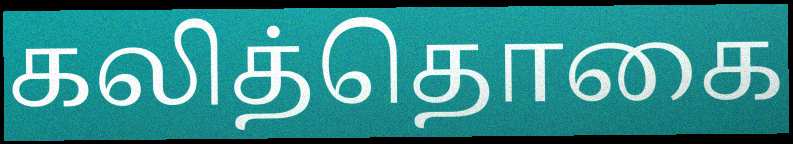
கலித்தொகை